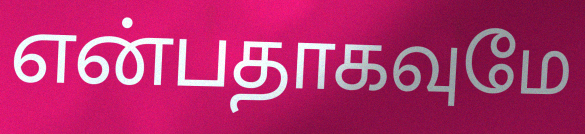
என்பதாகவுமே